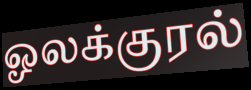
ஓலக்குரல்